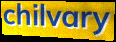
chilvary